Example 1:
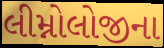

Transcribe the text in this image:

લીમ્નોલોજીના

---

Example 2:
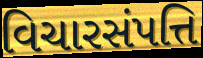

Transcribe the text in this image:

વિચારસંપત્તિ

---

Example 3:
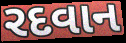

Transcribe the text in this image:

રદવાન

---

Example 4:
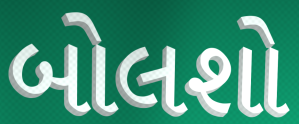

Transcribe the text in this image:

બોલશો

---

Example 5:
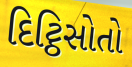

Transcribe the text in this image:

દિટ્ઠિસોતો